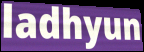
ladhyun